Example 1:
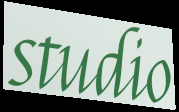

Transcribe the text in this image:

studio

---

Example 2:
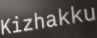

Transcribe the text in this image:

Kizhakku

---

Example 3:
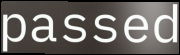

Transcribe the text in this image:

passed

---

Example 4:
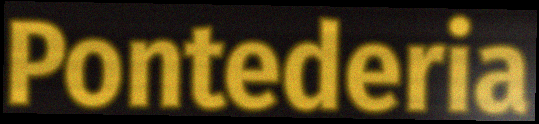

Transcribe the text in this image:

Pontederia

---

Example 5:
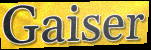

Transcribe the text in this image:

Gaiser